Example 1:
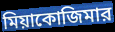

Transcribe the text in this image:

মিয়াকোজিমার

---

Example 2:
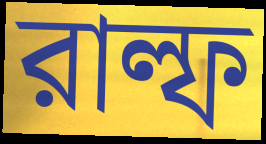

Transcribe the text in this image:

রাল্ফ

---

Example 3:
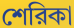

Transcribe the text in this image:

শেরিকা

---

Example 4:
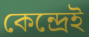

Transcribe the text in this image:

কেন্দ্রেই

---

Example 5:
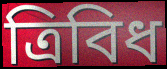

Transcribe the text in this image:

ত্রিবিধ